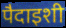
पैदाइशी